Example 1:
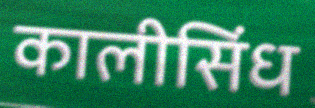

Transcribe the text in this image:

कालीसिंध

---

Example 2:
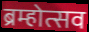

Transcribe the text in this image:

ब्रम्होत्सव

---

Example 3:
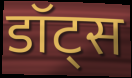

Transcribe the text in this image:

डॉट्स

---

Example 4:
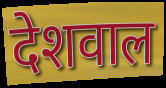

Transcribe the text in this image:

देशवाल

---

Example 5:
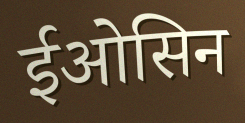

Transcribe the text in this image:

ईओसिन